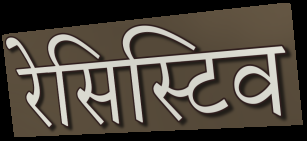
रेसिस्टिव